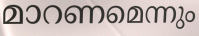
മാറണമെന്നും